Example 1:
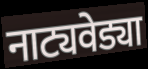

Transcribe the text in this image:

नाट्यवेड्या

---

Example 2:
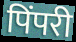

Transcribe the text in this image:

पिंपरी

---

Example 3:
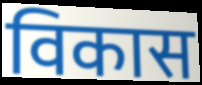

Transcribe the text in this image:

विकास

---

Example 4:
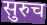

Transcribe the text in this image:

सुरुच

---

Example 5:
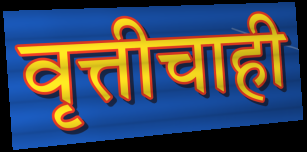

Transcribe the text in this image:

वृत्तीचाही